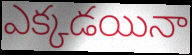
ఎక్కడయినా